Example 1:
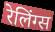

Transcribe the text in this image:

रेलिंग्स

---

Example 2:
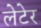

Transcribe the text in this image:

लेटेर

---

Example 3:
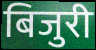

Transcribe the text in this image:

बिजुरी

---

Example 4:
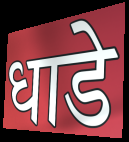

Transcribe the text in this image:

धाडे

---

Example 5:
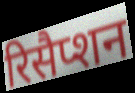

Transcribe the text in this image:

रिसैप्शन